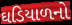
ઘડિયાળનો